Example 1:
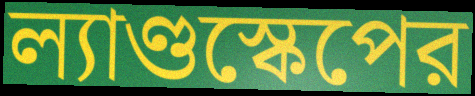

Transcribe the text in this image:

ল্যাণ্ডস্কেপের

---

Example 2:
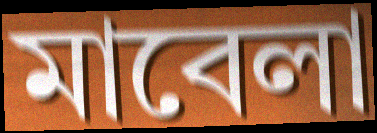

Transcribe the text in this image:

মাবেলা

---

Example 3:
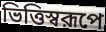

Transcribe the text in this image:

ভিত্তিস্বরূপে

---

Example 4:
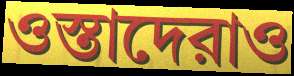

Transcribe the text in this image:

ওস্তাদেরাও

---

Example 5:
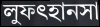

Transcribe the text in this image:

লুফৎহানসা